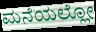
ಮನೆಯಲ್ಲೋ